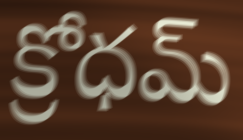
క్రోధమ్